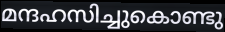
മന്ദഹസിച്ചുകൊണ്ടു